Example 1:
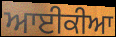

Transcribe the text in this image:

ਆਈਕੀਆ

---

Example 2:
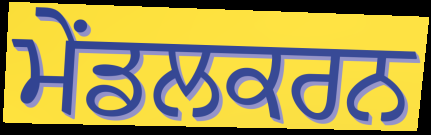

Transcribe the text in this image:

ਮੇਂਡਲਕਰਨ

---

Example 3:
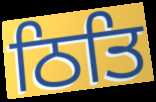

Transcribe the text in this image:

ਠਿਤਿ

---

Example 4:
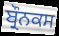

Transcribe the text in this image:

ਬ੍ਰੌਨਕਸ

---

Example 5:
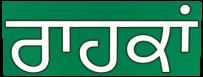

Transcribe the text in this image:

ਰਾਹਕਾਂ